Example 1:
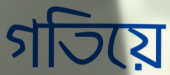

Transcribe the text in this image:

গতিয়ে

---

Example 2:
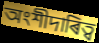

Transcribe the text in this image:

অংশীদাৰিত্ব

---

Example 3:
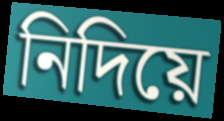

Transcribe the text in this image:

নিদিয়ে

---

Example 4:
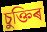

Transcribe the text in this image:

চুক্তিৰ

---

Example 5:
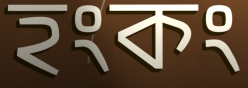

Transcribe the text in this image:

হংকং